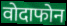
वोदाफोन